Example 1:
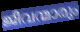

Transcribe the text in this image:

ജീവന്മാരും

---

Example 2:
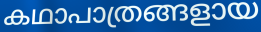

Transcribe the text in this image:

കഥാപാത്രങ്ങളായ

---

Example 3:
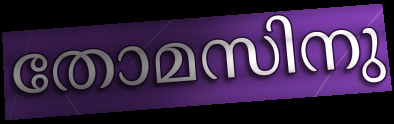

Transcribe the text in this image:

തോമസിനു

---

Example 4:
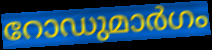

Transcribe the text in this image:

റോഡുമാർഗം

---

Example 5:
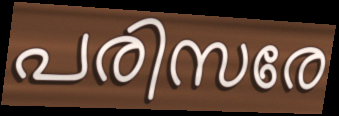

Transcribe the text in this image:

പരിസരേ